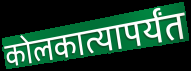
कोलकात्यापर्यंत